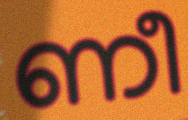
ണീ